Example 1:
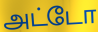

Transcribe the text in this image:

அட்டோ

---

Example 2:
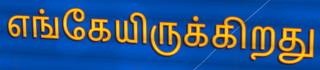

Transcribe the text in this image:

எங்கேயிருக்கிறது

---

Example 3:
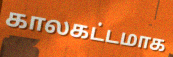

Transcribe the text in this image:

காலகட்டமாக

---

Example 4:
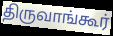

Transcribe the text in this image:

திருவாங்கூர்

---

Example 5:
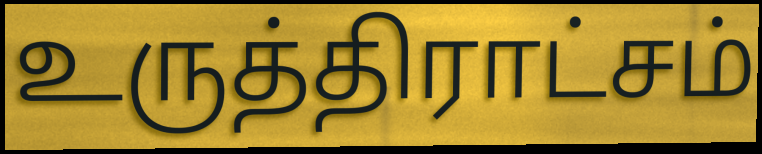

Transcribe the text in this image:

உருத்திராட்சம்